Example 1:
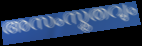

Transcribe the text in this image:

അസംസ്കൃതവും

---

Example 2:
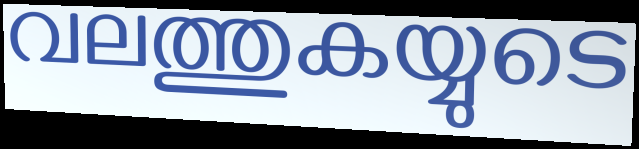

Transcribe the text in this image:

വലത്തുകയ്യുടെ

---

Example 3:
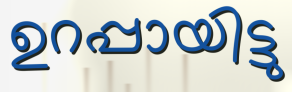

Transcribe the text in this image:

ഉറപ്പായിട്ടു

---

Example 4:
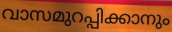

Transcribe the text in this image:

വാസമുറപ്പിക്കാനും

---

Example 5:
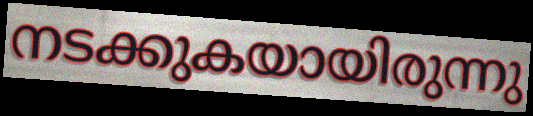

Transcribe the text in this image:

നടക്കുകയായിരുന്നു